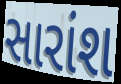
સારાંશ